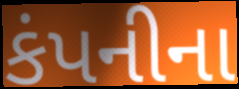
કંપનીના